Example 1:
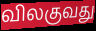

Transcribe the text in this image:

விலகுவது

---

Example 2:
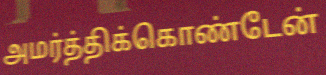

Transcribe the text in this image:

அமர்த்திக்கொண்டேன்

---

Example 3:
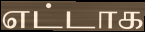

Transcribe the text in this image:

எட்டாக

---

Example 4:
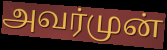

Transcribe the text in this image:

அவர்முன்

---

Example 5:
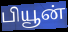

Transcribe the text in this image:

பியூன்